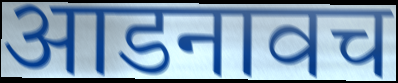
आडनावच